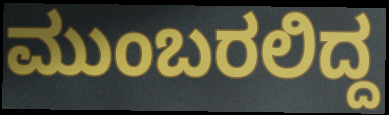
ಮುಂಬರಲಿದ್ದ